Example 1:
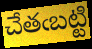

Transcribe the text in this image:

చేతఁబట్టి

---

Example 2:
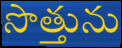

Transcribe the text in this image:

సొత్తును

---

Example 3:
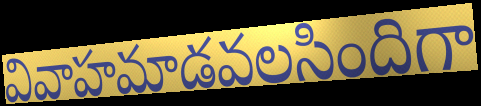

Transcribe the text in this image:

వివాహమాడవలసిందిగా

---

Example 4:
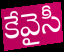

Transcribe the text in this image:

కేవైసీ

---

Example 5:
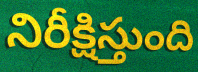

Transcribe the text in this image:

నిరీక్షిస్తుంది